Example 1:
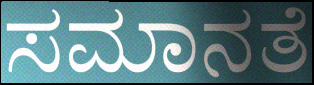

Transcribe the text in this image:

ಸಮಾನತೆ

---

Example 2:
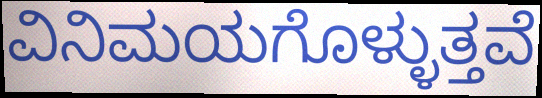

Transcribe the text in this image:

ವಿನಿಮಯಗೊಳ್ಳುತ್ತವೆ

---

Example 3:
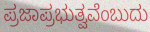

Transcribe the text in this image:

ಪ್ರಜಾಪ್ರಭುತ್ವವೆಂಬುದು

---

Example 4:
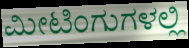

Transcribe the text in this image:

ಮೀಟಿಂಗುಗಳಲ್ಲಿ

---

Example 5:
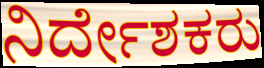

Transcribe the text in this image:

ನಿರ್ದೇಶಕರು